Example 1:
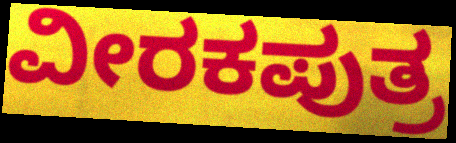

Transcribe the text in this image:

ವೀರಕಪುತ್ರ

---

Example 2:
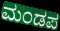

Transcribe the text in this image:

ಮಂಡಪ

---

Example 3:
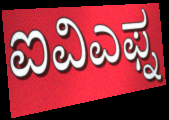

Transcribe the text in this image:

ಐವಿಎಫ್ನ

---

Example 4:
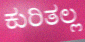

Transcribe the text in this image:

ಕುರಿತಲ್ಲ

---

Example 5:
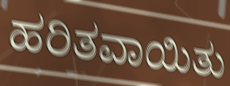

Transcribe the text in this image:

ಹರಿತವಾಯಿತು